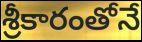
శ్రీకారంతోనే